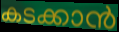
കടക്കാൻ